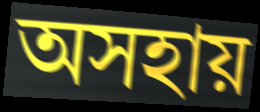
অসহায়